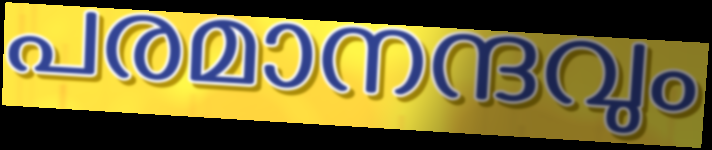
പരമാനന്ദവും